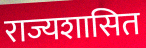
राज्यशासित